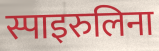
स्पाइरुलिना